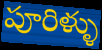
పూరిళ్ళు